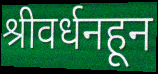
श्रीवर्धनहून